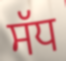
ਸੱਧ